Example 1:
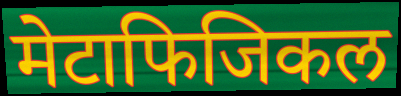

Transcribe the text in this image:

मेटाफिजिकल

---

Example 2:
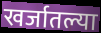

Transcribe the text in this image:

खर्जातल्या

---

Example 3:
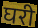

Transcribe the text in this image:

घरी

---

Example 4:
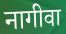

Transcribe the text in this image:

नागीवा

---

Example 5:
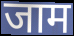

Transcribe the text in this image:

जाम